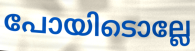
പോയിടൊല്ലേ